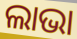
ଲାଭା